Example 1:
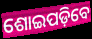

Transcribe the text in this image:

ଶୋଇପଡ଼ିବେ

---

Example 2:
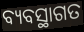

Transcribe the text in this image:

ବ୍ଯବସ୍ଥାଗତ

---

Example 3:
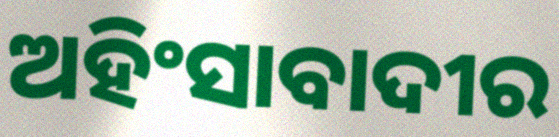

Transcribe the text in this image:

ଅହିଂସାବାଦୀର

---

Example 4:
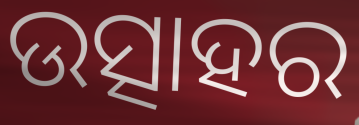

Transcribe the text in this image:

ଉତ୍ସାହର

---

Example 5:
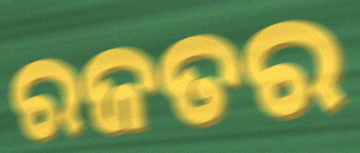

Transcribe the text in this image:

ରଜତର